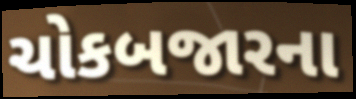
ચોકબજારના